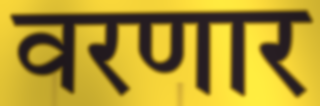
वरणार